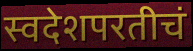
स्वदेशपरतीचं